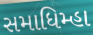
સમાધિમ્હા